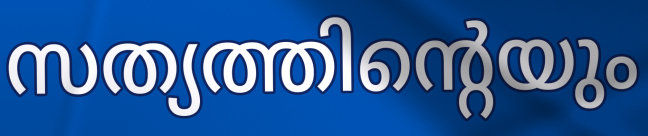
സത്യത്തിന്റെയും